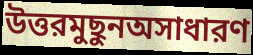
উত্তরমুছুনঅসাধারণ